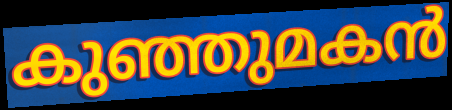
കുഞ്ഞുമകൻ